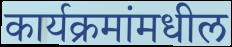
कार्यक्रमांमधील